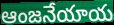
ఆంజనేయాయ